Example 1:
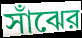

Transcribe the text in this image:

সাঁঝের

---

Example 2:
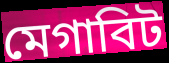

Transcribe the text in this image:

মেগাবিট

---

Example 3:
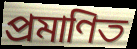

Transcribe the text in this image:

প্রমাণিত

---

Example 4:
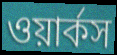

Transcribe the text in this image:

ওয়ার্কস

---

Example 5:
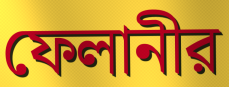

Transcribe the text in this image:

ফেলানীর